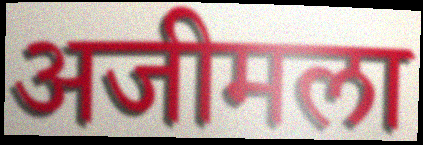
अजीमला